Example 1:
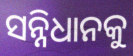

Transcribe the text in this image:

ସନ୍ନିଧାନକୁ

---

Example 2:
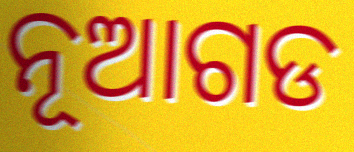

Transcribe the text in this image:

ନୂଆଗଡ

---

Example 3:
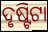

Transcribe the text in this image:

ଦୃଷ୍ଟିଟା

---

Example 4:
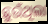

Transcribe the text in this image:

ଛୁଉଁଥିଲା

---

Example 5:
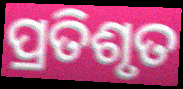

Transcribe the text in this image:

ପ୍ରତିଶୃତ